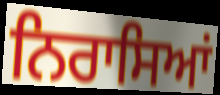
ਨਿਰਾਸਿਆਂ